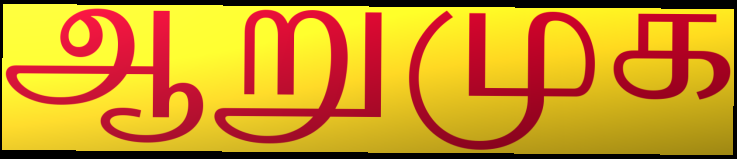
ஆறுமுக